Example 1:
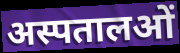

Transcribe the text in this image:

अस्पतालओं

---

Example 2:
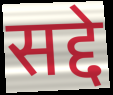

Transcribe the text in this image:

सद्दे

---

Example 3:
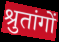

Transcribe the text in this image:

श्रुतांगों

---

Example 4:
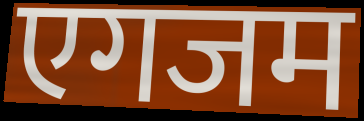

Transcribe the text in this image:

एगजम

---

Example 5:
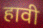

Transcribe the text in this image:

हावी